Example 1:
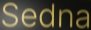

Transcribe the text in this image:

Sedna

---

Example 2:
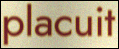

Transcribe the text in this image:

placuit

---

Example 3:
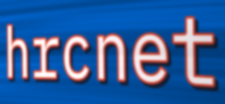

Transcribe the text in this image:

hrcnet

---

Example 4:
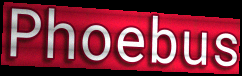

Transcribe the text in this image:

Phoebus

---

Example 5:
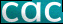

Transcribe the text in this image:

cac